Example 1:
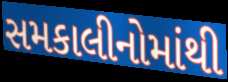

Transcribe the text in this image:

સમકાલીનોમાંથી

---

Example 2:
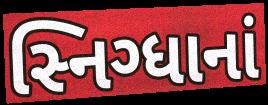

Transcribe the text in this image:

સ્નિગ્ધાનાં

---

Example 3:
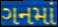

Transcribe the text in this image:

ગનમાં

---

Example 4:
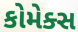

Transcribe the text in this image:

કોમેક્સ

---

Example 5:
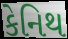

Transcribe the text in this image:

કેનિથ